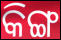
କିଙ୍ଗ